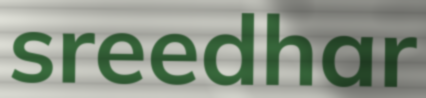
sreedhar